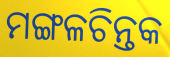
ମଙ୍ଗଳଚିନ୍ତକ